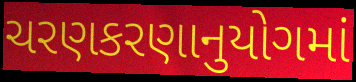
ચરણકરણાનુયોગમાં